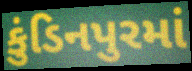
કુંડિનપુરમાં